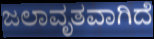
ಜಲಾವೃತವಾಗಿದೆ